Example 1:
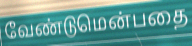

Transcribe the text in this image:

வேண்டுமென்பதை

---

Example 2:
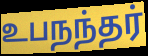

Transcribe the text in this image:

உபநந்தர்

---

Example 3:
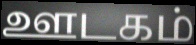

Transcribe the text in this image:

ஊடகம்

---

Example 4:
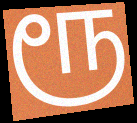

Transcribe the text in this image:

ரூ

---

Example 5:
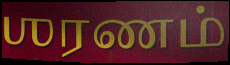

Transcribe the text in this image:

ஶரணம்